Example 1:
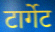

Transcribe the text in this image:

टार्गेट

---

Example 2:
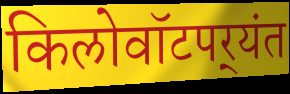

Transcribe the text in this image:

किलोवॉटपर्यंत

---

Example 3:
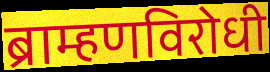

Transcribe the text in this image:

ब्राम्हणविरोधी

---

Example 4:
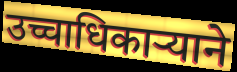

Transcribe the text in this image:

उच्चाधिकाऱ्याने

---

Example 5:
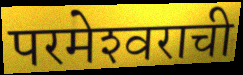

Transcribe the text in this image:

परमेश्वराची